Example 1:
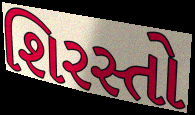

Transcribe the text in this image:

શિરસ્તો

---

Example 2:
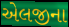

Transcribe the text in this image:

એલજીના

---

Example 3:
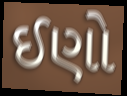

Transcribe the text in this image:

ઈણો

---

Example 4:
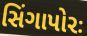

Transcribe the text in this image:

સિંગાપોરઃ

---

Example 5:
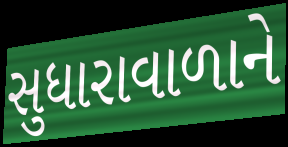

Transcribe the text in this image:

સુધારાવાળાને